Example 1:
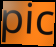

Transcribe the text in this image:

pic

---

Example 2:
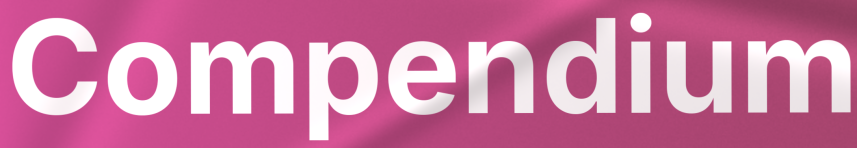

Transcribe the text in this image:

Compendium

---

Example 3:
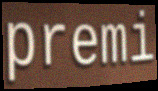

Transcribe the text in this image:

premi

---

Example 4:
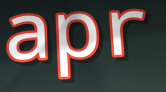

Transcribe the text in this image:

apr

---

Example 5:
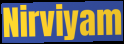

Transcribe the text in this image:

Nirviyam